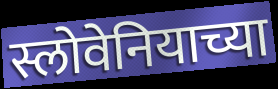
स्लोवेनियाच्या